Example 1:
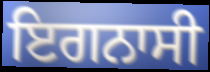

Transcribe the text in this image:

ਇਗਨਾਸੀ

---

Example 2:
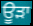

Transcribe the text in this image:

ਊੜਾ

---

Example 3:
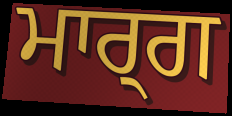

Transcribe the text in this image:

ਮਾਰ੍ਗ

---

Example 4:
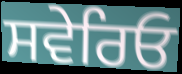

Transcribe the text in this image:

ਸਵੇਰਿਓ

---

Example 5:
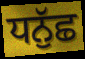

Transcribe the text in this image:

ਧਨੁੱਛ